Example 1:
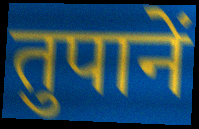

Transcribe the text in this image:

तुपानें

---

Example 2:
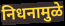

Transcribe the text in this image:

निधनामुळे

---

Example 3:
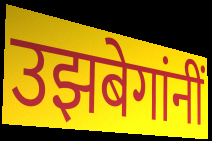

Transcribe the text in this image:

उझबेगांनीं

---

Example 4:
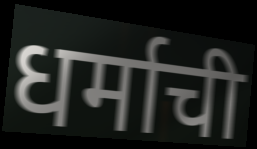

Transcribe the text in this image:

धर्माची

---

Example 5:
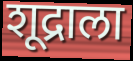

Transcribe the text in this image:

शूद्राला